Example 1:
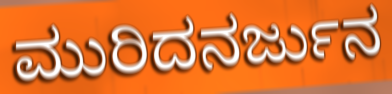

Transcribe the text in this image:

ಮುರಿದನರ್ಜುನ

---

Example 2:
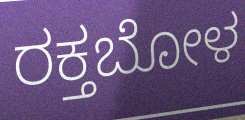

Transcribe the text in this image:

ರಕ್ತಬೋಳ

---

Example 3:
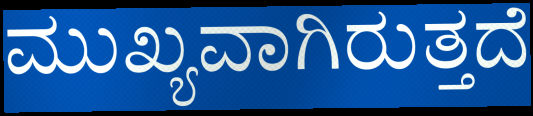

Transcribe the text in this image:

ಮುಖ್ಯವಾಗಿರುತ್ತದೆ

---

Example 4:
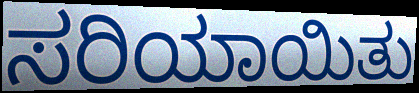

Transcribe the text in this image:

ಸರಿಯಾಯಿತು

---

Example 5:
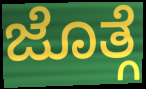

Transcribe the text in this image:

ಜೊತ್ಗೆ